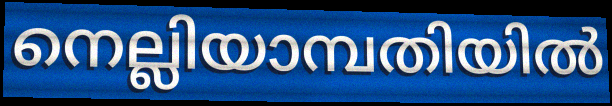
നെല്ലിയാമ്പതിയിൽ